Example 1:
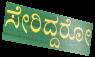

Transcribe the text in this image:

ಸೇರಿದ್ದರೋ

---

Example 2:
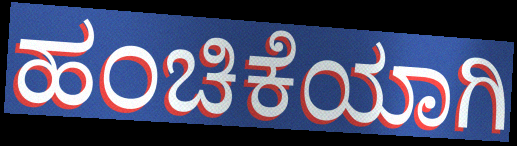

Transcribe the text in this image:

ಹಂಚಿಕೆಯಾಗಿ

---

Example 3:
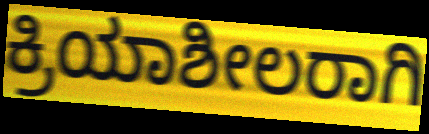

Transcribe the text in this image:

ಕ್ರಿಯಾಶೀಲರಾಗಿ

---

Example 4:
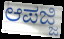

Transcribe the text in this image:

ಆಪಜ್ಜಿ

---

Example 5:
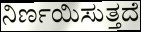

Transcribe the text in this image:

ನಿರ್ಣಯಿಸುತ್ತದೆ